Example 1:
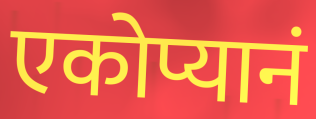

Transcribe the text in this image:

एकोप्यानं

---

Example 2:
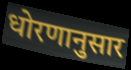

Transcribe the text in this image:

धोरणानुसार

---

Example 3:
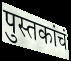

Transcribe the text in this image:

पुस्तकांचं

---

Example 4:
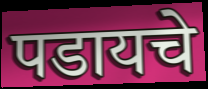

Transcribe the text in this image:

पडायचे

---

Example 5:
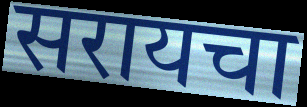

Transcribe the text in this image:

सरायचा